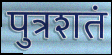
पुत्रशतं